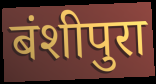
बंशीपुरा